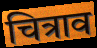
चित्राव